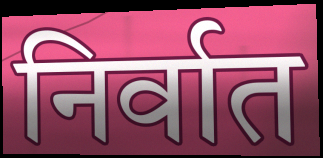
निर्वात